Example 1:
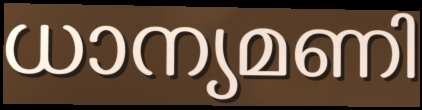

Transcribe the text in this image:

ധാന്യമണി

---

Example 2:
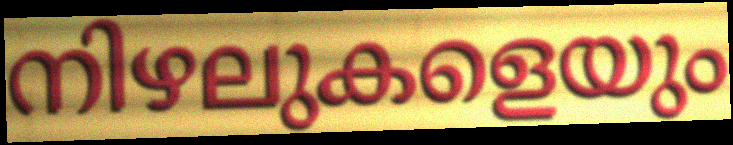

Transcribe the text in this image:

നിഴലുകളെയും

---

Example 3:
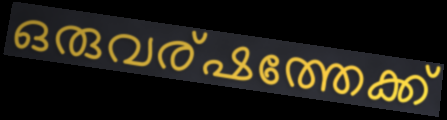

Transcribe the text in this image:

ഒരുവര്ഷത്തേക്ക്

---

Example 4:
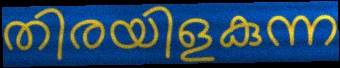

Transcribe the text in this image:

തിരയിളകുന്ന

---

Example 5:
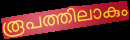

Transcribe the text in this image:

രൂപത്തിലാകും